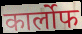
कार्लोफ